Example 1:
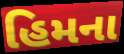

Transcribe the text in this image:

હિમના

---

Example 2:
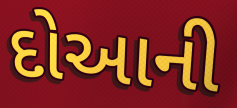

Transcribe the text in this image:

દોઆની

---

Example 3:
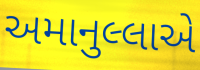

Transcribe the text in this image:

અમાનુલ્લાએ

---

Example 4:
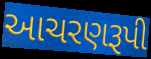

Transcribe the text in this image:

આચરણરૂપી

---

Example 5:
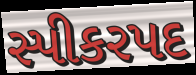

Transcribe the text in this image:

સ્પીકરપદ